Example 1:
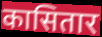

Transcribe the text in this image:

कासितार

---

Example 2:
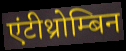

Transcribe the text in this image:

एंटीथ्रोम्बिन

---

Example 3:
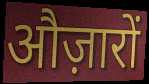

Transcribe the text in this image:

औज़ारों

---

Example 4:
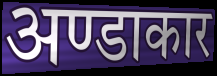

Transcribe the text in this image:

अण्डाकार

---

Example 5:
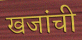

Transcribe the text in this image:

खजांची